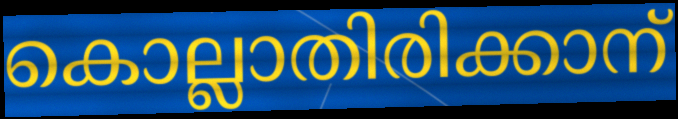
കൊല്ലാതിരിക്കാന്